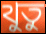
থুতু